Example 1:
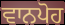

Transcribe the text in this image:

ਵਾਨਪੋਹ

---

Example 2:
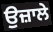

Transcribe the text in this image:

ਉਜ਼ਾਲੇ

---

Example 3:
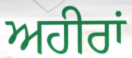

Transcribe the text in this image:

ਅਹੀਰਾਂ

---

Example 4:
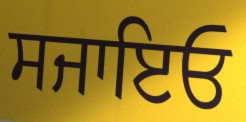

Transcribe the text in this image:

ਸਜਾਇਓ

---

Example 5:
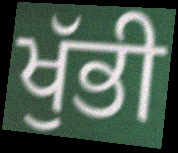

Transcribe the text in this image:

ਖੁੱਭੀ